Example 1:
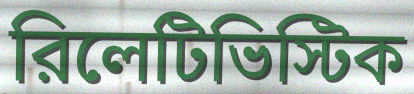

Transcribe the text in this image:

রিলেটিভিস্টিক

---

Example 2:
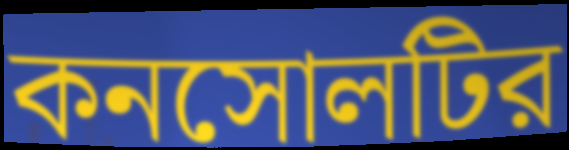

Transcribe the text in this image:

কনসোলটির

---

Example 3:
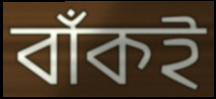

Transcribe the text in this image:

বাঁকই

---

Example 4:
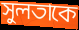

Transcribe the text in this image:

সুলতাকে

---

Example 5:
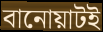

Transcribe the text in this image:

বানোয়াটই